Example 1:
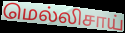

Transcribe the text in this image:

மெல்லிசாய்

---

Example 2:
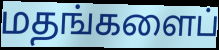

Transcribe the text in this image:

மதங்களைப்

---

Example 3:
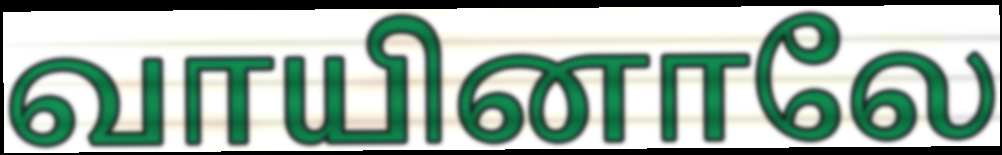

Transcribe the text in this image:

வாயினாலே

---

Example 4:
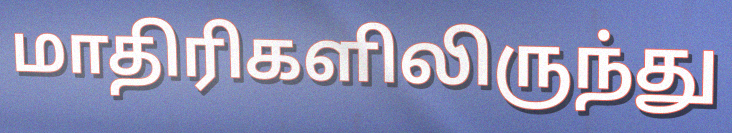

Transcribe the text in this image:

மாதிரிகளிலிருந்து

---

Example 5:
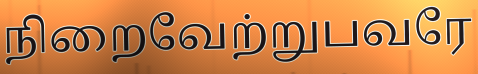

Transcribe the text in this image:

நிறைவேற்றுபவரே